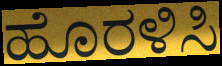
ಹೊರಳಿಸಿ